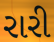
રારી